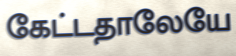
கேட்டதாலேயே